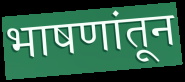
भाषणांतून